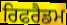
ਰਿਫਰੈਡਮ